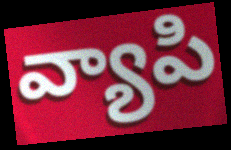
వ్యాపి